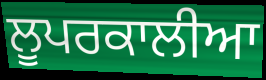
ਲੂਪਰਕਾਲੀਆ